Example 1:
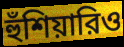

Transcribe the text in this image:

হুঁশিয়ারিও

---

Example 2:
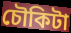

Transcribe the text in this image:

চৌকিটা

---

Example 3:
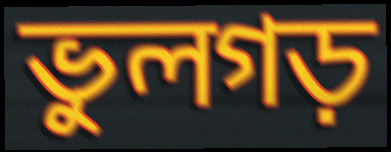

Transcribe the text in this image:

ভুলগড়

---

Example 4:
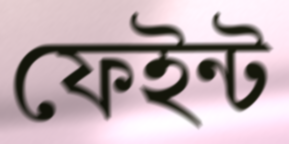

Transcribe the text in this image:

ফেইন্ট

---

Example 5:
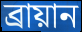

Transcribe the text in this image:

ব্রায়ান